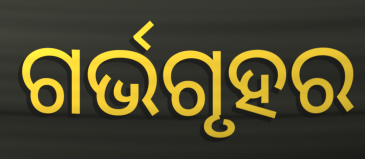
ଗର୍ଭଗୃହର